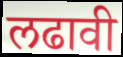
लढावी